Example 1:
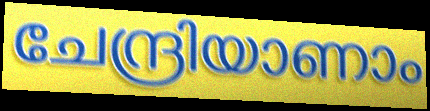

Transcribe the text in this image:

ചേന്ദ്രിയാണാം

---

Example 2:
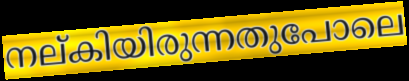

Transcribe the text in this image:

നല്കിയിരുന്നതുപോലെ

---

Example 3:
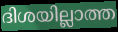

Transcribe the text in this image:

ദിശയില്ലാത്ത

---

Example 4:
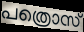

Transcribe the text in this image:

പത്രൊസ്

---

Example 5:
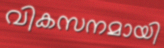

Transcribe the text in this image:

വികസനമായി